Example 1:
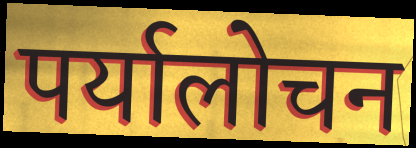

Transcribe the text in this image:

पर्यालोचन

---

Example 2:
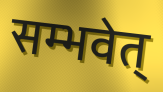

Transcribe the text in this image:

सम्भवेत्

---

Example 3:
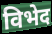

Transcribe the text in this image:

विभेद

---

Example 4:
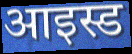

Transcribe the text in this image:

आइस्ड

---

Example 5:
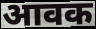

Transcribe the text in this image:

आवक